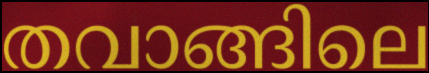
തവാങ്ങിലെ